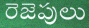
రెజెపులు